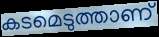
കടമെടുത്താണ്